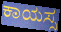
ಕಾಯಸ್ಸ